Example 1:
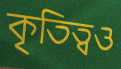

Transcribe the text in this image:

কৃতিত্বও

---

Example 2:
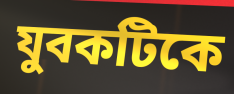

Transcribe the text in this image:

যুবকটিকে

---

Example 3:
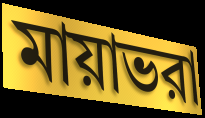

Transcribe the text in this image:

মায়াভরা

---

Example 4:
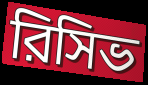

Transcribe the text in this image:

রিসিভ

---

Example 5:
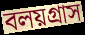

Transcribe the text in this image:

বলয়গ্রাস